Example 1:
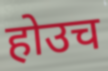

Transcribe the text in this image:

होउच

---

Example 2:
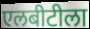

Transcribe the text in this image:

एलबीटीला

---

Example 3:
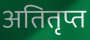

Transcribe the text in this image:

अतितृप्त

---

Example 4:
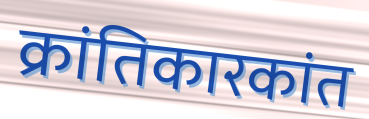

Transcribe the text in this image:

क्रांतिकारकांत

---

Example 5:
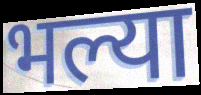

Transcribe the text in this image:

भल्या